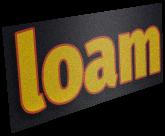
loam